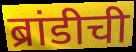
ब्रांडीची